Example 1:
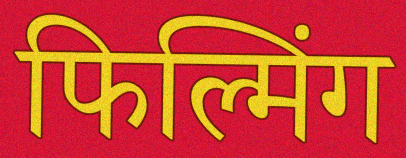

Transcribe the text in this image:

फिल्मिंग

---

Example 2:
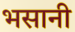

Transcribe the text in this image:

भसानी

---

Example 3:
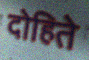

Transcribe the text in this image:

दोहिते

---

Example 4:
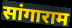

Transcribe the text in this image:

सांगाराम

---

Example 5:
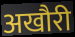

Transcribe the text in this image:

अखौरी